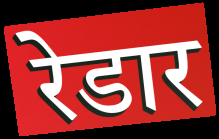
रेडार